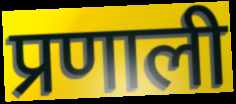
प्रणाली